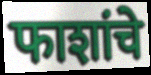
फाशांचे